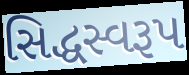
સિદ્ધસ્વરૂપ